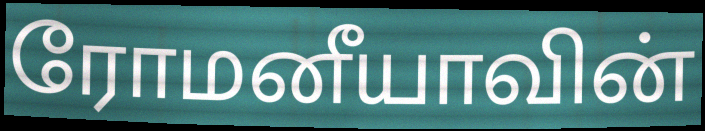
ரோமனீயாவின்